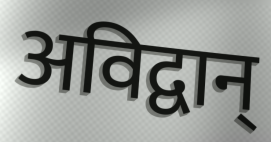
अविद्वान्